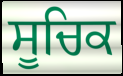
ਸੂਚਿਕ